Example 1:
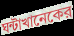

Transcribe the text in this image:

ঘন্টাখানেকের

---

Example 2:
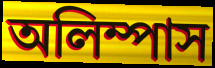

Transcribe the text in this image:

অলিম্পাস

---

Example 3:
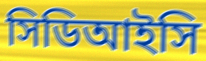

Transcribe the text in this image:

সিডিআইসি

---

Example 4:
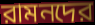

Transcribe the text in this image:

রামনদের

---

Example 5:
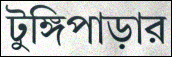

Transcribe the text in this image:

টুঙ্গিপাড়ার